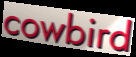
cowbird